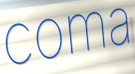
coma